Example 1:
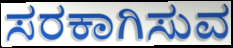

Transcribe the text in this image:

ಸರಕಾಗಿಸುವ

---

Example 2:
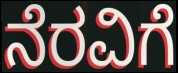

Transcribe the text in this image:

ನೆರವಿಗೆ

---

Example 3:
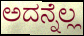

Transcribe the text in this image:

ಅದನ್ನೆಲ್ಲ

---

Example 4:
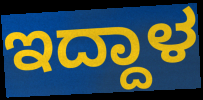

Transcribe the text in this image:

ಇದ್ದಾಳ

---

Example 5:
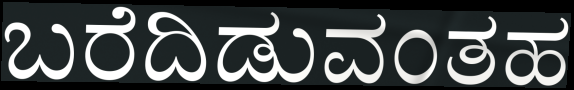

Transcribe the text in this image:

ಬರೆದಿಡುವಂತಹ